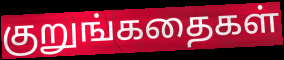
குறுங்கதைகள்